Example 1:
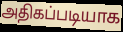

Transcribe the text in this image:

அதிகப்படியாக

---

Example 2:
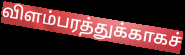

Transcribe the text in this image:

விளம்பரத்துக்காகச்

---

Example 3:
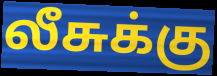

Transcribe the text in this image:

லீசுக்கு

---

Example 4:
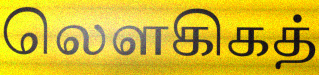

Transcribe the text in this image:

லௌகிகத்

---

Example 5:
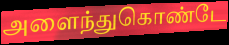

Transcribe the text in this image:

அளைந்துகொண்டே